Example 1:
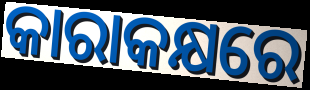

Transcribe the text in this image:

କାରାକକ୍ଷରେ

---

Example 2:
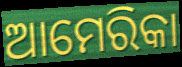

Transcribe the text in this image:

ଆମେରିକା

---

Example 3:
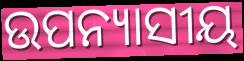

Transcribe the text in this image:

ଉପନ୍ୟାସୀୟ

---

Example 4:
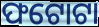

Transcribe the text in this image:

ଫଟୋଟା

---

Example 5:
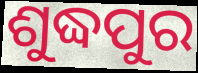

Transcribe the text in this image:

ଶୁଦ୍ଧପୁର